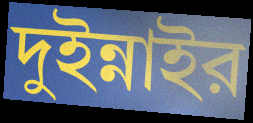
দুইন্নাইর